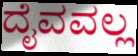
ದೈವವಲ್ಲ